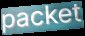
packet